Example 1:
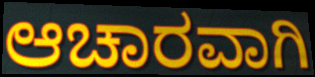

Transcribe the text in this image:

ಆಚಾರವಾಗಿ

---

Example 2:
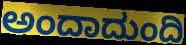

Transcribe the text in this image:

ಅಂದಾದುಂದಿ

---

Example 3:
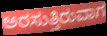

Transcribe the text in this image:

ಅರಸುತ್ತಿರುವಾಗ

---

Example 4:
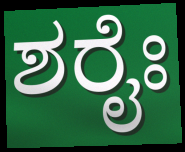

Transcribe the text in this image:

ಶರೈಃ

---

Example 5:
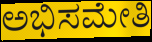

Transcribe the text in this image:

ಅಭಿಸಮೇತಿ